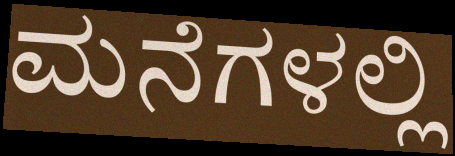
ಮನೆಗಳಲ್ಲಿ